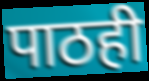
पाठही